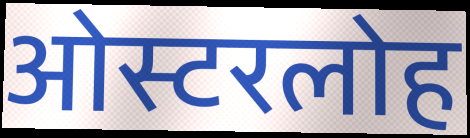
ओस्टरलोह